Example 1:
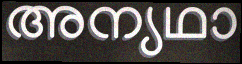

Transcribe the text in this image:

അന്യഥാ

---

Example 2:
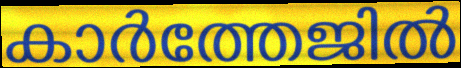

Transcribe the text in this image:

കാർത്തേജിൽ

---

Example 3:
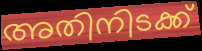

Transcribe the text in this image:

അതിനിടക്ക്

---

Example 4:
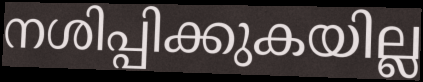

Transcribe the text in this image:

നശിപ്പിക്കുകയില്ല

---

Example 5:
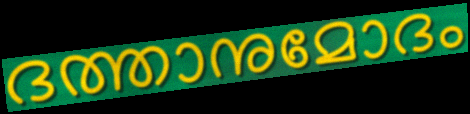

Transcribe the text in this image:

ദത്താനുമോദം